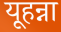
यूहन्ना